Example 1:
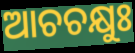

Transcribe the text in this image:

ଆଚଚକ୍ଷୁଃ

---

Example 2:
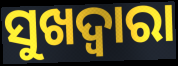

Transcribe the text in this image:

ସୁଖଦ୍ଵାରା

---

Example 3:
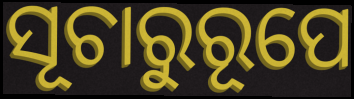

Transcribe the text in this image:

ସୂଚାରୁରୂପେ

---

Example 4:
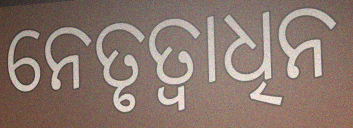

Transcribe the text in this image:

ନେତୃତ୍ୱାଧିନ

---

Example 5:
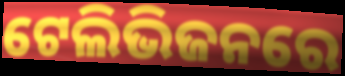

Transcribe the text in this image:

ଟେଲିଭିଜନରେ